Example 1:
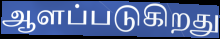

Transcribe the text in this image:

ஆளப்படுகிறது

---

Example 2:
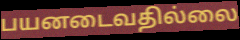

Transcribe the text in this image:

பயனடைவதில்லை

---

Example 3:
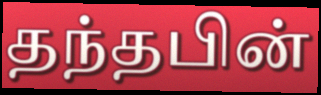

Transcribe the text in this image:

தந்தபின்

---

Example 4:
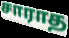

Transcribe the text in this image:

சாராத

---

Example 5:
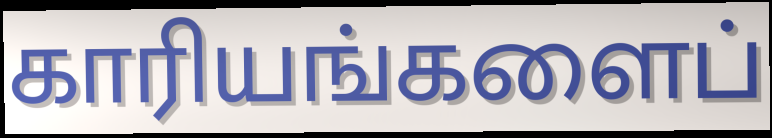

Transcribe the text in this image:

காரியங்களைப்